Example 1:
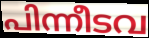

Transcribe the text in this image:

പിന്നീടവ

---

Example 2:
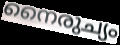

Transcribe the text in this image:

നൈരുച്യം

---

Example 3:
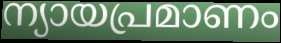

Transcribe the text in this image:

ന്യായപ്രമാണം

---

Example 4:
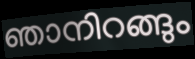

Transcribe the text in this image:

ഞാനിറങ്ങും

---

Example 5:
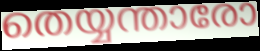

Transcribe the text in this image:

തെയ്യന്താരോ